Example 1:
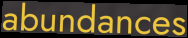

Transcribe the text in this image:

abundances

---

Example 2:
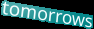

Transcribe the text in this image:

tomorrows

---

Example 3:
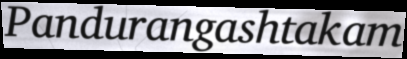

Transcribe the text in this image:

Pandurangashtakam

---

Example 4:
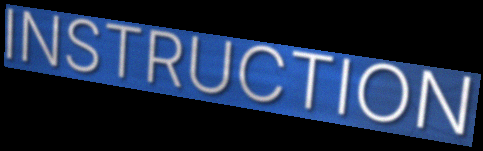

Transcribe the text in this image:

INSTRUCTION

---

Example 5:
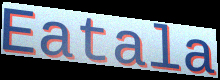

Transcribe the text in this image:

Eatala